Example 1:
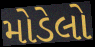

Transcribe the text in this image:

મોડેલો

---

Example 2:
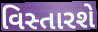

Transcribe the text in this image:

વિસ્તારશે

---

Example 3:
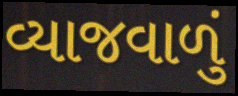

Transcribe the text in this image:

વ્યાજવાળું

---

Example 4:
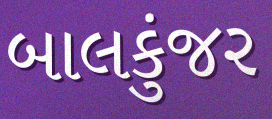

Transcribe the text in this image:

બાલકુંજર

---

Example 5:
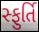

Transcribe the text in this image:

સ્ફુર્તિ